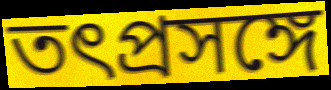
তৎপ্রসঙ্গে